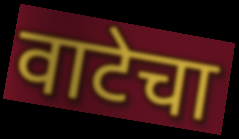
वाटेचा